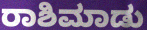
ರಾಶಿಮಾಡು